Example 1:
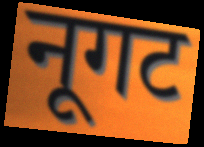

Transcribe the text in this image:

नूगट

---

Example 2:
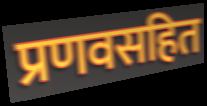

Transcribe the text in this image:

प्रणवसहित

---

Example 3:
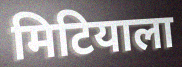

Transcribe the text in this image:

मिटियाला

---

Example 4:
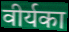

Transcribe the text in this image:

वीर्यका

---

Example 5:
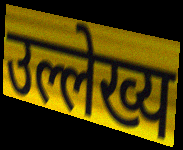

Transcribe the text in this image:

उल्लेख्य